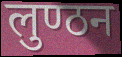
लुण्ठन